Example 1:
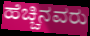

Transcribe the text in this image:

ಹೆಚ್ಚಿನವರು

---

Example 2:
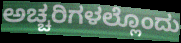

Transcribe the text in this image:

ಅಚ್ಚರಿಗಳಲ್ಲೊಂದು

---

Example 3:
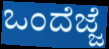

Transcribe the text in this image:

ಒಂದೆಜ್ಜೆ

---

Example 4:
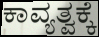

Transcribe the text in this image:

ಕಾವ್ಯತ್ವಕ್ಕೆ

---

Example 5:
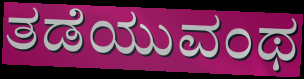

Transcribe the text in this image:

ತಡೆಯುವಂಥ